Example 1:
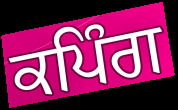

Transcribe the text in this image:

ਕਪਿੰਗ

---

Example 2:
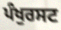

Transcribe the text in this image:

ਪੰਖੁਰਸਟ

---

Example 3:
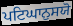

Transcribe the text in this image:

ਪਟਿਘਾਨੁਸਯੋ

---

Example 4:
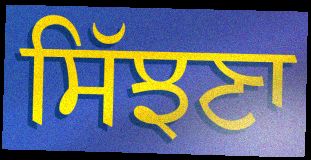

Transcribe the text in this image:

ਸਿੱਝਣਾ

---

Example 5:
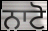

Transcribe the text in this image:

ਨਾਟੋ